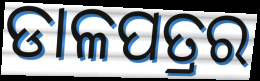
ଡାଳପତ୍ରର